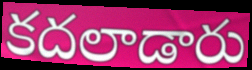
కదలాడారు